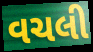
વચલી